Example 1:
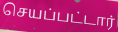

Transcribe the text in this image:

செயப்பட்டார்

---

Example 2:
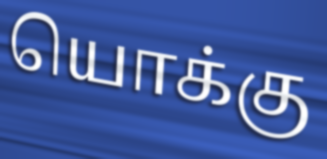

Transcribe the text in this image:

யொக்கு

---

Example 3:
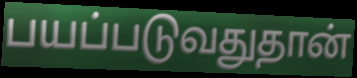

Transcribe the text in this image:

பயப்படுவதுதான்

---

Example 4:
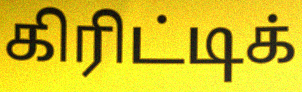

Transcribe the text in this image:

கிரிட்டிக்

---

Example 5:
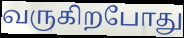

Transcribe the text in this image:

வருகிறபோது